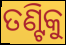
ତଣ୍ଟିକୁ